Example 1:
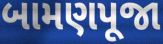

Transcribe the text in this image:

બામણપૂજા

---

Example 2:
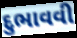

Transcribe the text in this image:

દુભાવવી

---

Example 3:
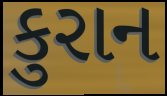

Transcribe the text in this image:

કુરાન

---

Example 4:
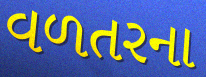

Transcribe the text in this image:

વળતરના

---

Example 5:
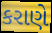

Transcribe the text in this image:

કરાણે